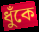
ধুঁকে